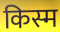
किस्‍म